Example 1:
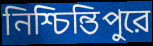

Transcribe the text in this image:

নিশ্চিন্তিপুরে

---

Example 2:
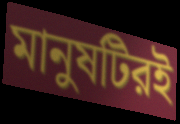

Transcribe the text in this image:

মানুষটিরই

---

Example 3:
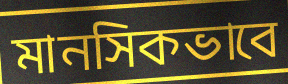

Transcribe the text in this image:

মানসিকভাবে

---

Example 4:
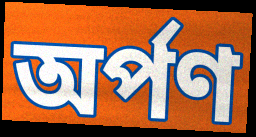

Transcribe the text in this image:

অর্পণ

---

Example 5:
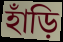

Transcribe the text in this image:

হাঁড়ি